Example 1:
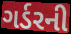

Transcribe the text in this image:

ગર્ડરની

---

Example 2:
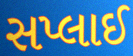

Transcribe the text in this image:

સપ્લાઈ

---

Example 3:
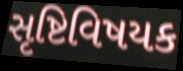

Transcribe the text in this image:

સૃષ્ટિવિષયક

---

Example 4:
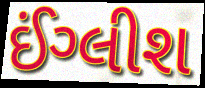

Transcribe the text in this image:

ઈંગ્લીશ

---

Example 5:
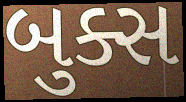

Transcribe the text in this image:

બુક્સ